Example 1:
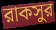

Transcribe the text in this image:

রাকসুর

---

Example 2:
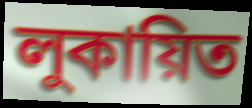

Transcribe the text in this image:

লুকায়িত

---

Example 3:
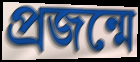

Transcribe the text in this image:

প্রজন্মে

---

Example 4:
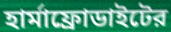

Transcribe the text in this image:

হার্মাফ্রোডাইটের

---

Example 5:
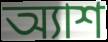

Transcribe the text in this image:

অ্যাশ